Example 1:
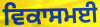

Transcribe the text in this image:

ਵਿਕਾਸਮਈ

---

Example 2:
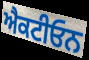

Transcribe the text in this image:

ਐਕਟੀਓਨ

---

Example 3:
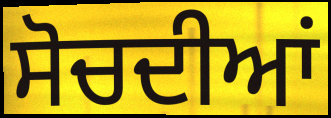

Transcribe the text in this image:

ਸੋਚਦੀਆਂ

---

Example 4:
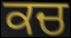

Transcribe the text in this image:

ਕਚ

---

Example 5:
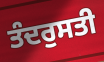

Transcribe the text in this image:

ਤੰਦਰੁਸਤੀ